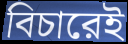
বিচারেই